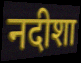
नदीशा